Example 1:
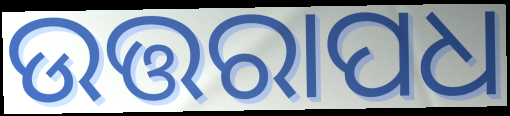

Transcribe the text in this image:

ଉତ୍ତରାପଧ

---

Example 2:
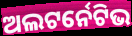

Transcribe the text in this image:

ଅଲଟର୍ନେଟିଭ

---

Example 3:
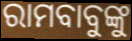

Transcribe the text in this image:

ରାମବାବୁଙ୍କୁ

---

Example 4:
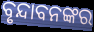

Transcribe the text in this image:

ବୃନ୍ଦାବନଙ୍କର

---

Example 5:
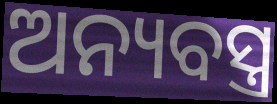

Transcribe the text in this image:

ଅନ୍ୟବସ୍ତ୍ର